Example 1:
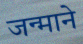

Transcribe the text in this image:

जन्माने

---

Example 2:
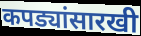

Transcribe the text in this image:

कपड्यांसारखी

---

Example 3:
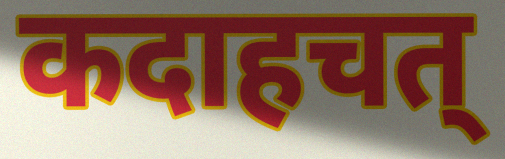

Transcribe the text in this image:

कदाहचत्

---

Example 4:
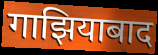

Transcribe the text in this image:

गाझियाबाद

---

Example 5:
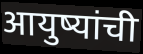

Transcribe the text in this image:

आयुष्यांची